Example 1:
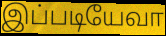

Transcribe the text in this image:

இப்படியேவா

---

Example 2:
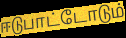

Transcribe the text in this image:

ஈடுபாட்டோடும்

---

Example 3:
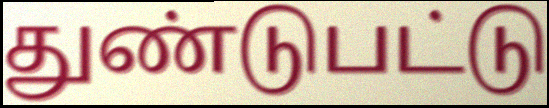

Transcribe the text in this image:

துண்டுபட்டு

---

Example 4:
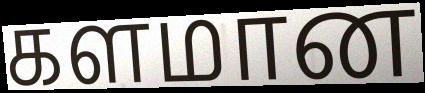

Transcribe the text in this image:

களமான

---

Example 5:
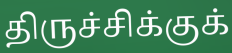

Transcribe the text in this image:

திருச்சிக்குக்